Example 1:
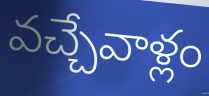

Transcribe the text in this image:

వచ్చేవాళ్లం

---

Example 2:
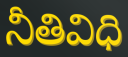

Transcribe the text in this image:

నీతివిధి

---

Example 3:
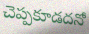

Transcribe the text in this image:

చెప్పకూడదనో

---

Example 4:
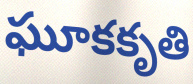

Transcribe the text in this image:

ఘూకకృతి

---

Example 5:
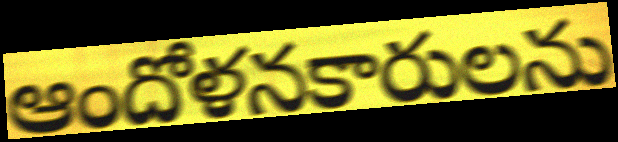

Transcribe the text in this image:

ఆందోళనకారులను